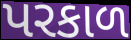
પરકાળ